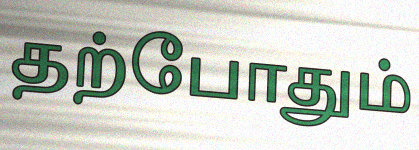
தற்போதும்